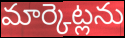
మార్కెట్లను